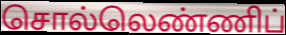
சொல்லெண்ணிப்